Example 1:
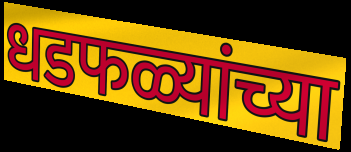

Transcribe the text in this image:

धडफळ्यांच्या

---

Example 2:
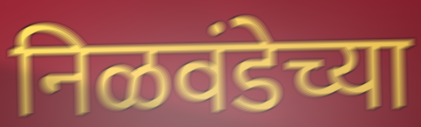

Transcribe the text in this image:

निळवंडेच्या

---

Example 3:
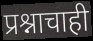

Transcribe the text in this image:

प्रश्नाचाही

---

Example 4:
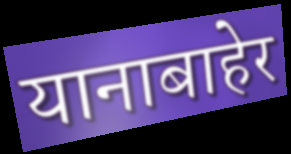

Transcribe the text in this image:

यानाबाहेर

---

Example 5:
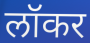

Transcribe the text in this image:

लॉकर